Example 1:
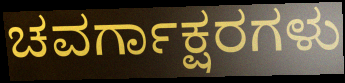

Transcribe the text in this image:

ಚವರ್ಗಾಕ್ಷರಗಳು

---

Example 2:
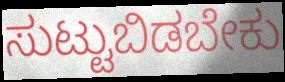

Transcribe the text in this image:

ಸುಟ್ಟುಬಿಡಬೇಕು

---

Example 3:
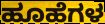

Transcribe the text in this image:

ಹೂಹೆಗಳ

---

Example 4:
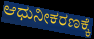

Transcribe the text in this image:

ಆಧುನೀಕರಣಕ್ಕೆ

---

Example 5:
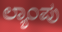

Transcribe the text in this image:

ಲ್ಯಾಂಪು